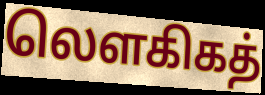
லௌகிகத்